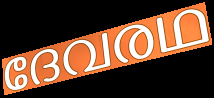
ദേവരഥ